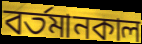
বর্তমানকাল